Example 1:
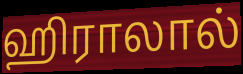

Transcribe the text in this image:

ஹிராலால்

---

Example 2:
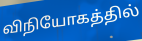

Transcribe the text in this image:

விநியோகத்தில்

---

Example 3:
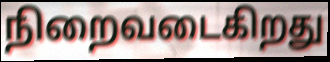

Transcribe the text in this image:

நிறைவடைகிறது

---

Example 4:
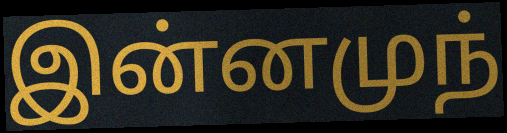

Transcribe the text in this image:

இன்னமுந்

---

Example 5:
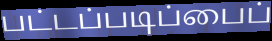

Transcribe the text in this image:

பட்டப்படிப்பைப்